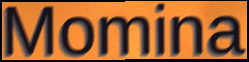
Momina